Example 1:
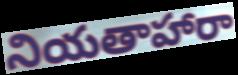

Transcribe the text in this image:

నియతాహారా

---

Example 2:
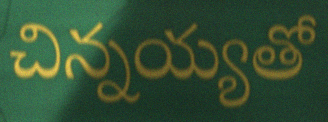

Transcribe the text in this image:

చిన్నయ్యతో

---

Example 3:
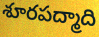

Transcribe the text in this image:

శూరపద్మాది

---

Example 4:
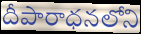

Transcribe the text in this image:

దీపారాధనలోని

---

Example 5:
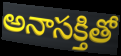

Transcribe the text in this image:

అనాసక్తితో